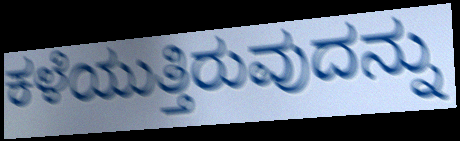
ಕಳೆಯುತ್ತಿರುವುದನ್ನು